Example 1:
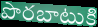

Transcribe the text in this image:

పొరబాటుకి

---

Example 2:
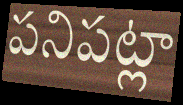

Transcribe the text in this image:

పనిపట్లా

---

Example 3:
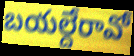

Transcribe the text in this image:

బయల్దేరావో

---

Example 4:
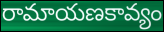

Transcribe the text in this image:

రామాయణకావ్యం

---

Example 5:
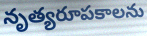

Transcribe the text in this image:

నృత్యరూపకాలను